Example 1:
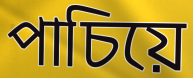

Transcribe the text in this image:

পাচিয়ে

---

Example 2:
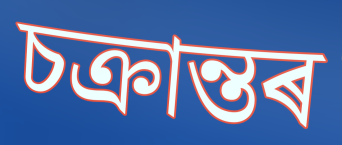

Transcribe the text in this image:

চক্ৰান্তৰ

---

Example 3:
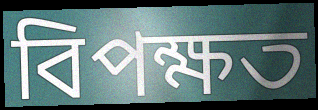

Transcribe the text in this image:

বিপক্ষত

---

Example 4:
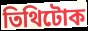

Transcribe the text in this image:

তিথিটোক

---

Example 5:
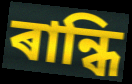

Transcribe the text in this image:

ৰান্ধি